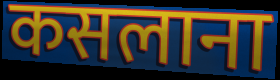
कसलाना